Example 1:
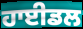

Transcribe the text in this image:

ਹਾਈਡਲ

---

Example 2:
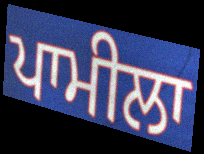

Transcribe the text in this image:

ਪਾਮੀਲਾ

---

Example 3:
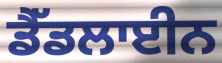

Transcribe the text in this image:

ਡੈੱਡਲਾਈਨ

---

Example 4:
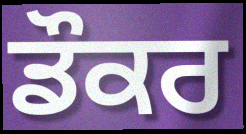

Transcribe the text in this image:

ਡੌਕਰ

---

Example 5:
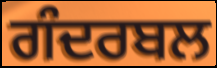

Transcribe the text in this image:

ਗੰਦਰਬਲ